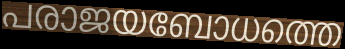
പരാജയബോധത്തെ